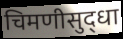
चिमणीसुद्धा